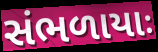
સંભળાયાઃ